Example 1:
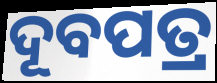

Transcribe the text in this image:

ଦୂବପତ୍ର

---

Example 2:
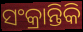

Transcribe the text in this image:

ସଂକ୍ରାନ୍ତିକି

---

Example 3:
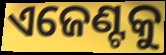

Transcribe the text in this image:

ଏଜେଣ୍ଟକୁ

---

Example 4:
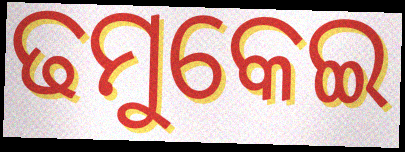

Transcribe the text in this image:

ଢମୁକେଇ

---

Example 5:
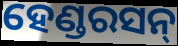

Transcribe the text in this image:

ହେଣ୍ଡରସନ୍